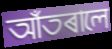
আঁতৰালে